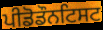
ਪੀਡੋਡੌਨਟਿਸਟ